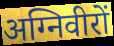
अग्निवीरों